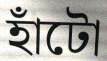
হাঁটো